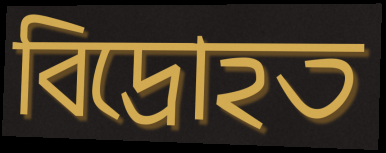
বিদ্ৰোহত